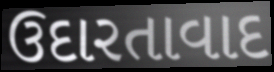
ઉદારતાવાદ